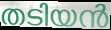
തടിയൻ